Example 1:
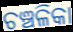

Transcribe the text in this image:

ଚଞ୍ଚଳିକା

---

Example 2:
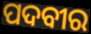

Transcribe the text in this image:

ପଦବୀର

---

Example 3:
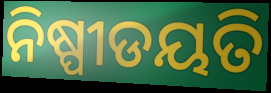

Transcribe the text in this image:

ନିଷ୍ପୀଡୟତି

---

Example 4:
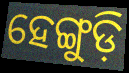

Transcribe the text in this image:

ହେଙ୍ଗୁଡ଼ି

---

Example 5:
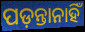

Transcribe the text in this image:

ପଡ଼ନ୍ତାନାହିଁ